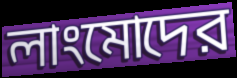
লাংমোদের